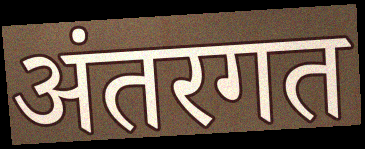
अंतरगत